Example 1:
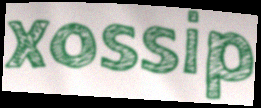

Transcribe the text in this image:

xossip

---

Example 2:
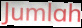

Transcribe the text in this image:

Jumlah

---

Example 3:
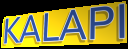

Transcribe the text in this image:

KALAPI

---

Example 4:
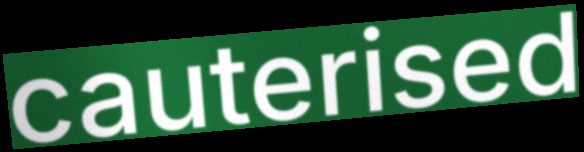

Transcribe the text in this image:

cauterised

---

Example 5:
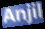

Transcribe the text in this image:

Anjil